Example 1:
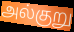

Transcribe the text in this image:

அல்குறு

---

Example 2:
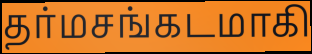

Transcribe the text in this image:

தர்மசங்கடமாகி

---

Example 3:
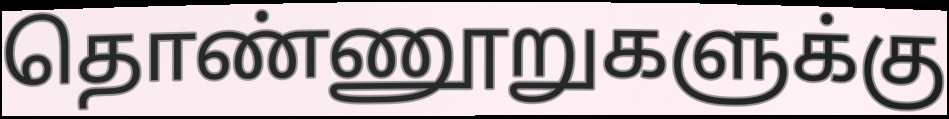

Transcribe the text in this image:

தொண்ணூறுகளுக்கு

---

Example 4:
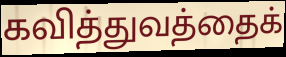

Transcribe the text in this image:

கவித்துவத்தைக்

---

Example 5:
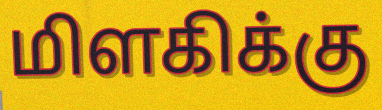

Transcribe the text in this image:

மிளகிக்கு